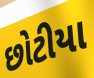
છોટીયા